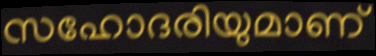
സഹോദരിയുമാണ്